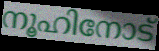
നൂഹിനോട്